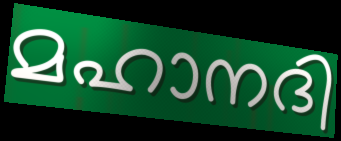
മഹാനദി